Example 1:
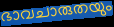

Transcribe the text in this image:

ഭാവചാരുതയും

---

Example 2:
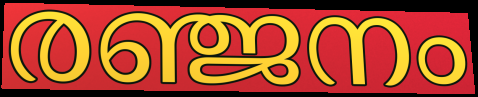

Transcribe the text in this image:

രഞ്ജനം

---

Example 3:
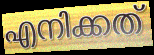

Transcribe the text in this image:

എനിക്കത്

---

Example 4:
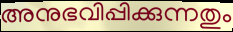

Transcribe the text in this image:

അനുഭവിപ്പിക്കുന്നതും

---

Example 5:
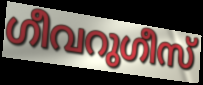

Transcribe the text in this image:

ഗീവറുഗീസ്